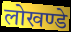
लोखण्डे